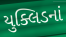
યુક્લિડનાં